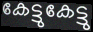
കേട്ടുകേട്ടു